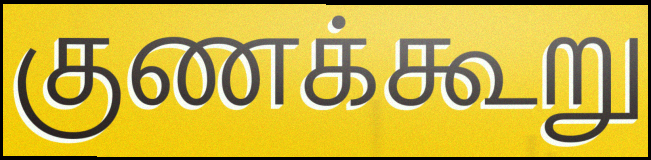
குணக்கூறு